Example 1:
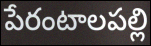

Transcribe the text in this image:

పేరంటాలపల్లి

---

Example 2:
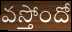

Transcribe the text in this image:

వస్తోందో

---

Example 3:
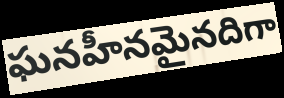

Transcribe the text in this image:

ఘనహీనమైనదిగా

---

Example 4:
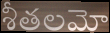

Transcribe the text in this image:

శీతలమో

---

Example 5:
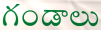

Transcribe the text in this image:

గండాలు